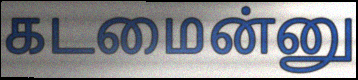
கடமைன்னு